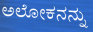
ಅಲೋಕನನ್ನು